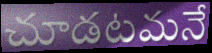
చూడటమనే